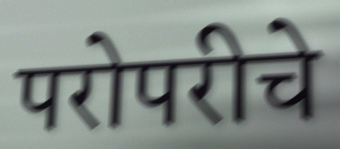
परोपरीचे